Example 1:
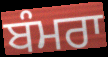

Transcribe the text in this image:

ਬੰਮਰਾ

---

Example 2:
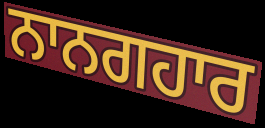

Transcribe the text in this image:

ਨਾਨਗਹਾਰ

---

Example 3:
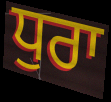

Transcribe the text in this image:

ਧੁਰਾ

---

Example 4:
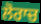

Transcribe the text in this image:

ਲੋਰਾਚ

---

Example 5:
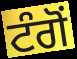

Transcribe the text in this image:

ਟੰਗੋਂ